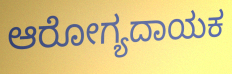
ಆರೋಗ್ಯದಾಯಕ